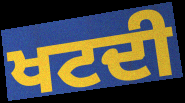
ਖਟਦੀ